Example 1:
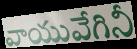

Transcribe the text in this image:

వాయువేగినీ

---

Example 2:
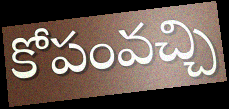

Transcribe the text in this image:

కోపంవచ్చి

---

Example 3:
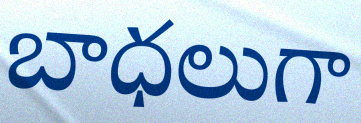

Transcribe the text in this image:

బాధలుగా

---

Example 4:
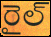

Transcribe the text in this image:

రైల్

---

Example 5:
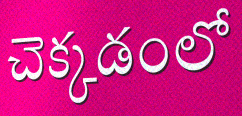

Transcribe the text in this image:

చెక్కడంలో